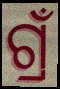
ଗ୍ରଁ